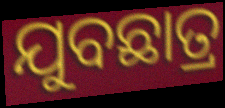
ଯୁବଛାତ୍ର